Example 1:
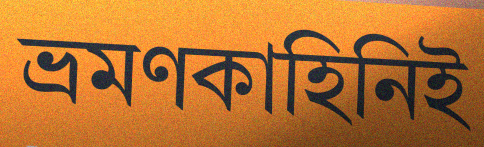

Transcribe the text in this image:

ভ্রমণকাহিনিই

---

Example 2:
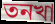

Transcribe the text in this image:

তনখা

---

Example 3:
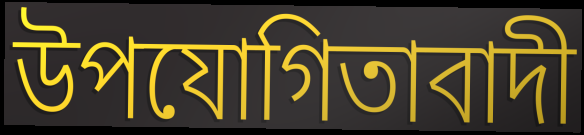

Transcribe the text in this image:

উপযোগিতাবাদী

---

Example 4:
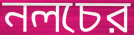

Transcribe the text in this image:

নলচের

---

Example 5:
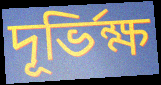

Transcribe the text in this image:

দূর্ভিক্ষ